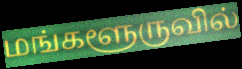
மங்களூருவில்